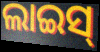
ଲାଇସ୍